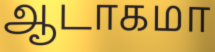
ஆடாகமா